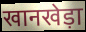
खानखेड़ा